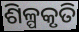
ଶିଳ୍ପକୃତି